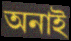
অনাই